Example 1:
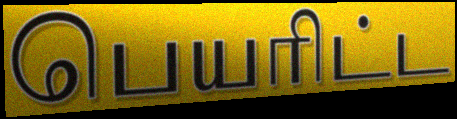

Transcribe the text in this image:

பெயரிட்ட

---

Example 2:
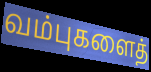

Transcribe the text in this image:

வம்புகளைத்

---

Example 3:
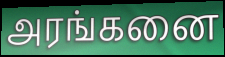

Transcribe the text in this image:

அரங்கனை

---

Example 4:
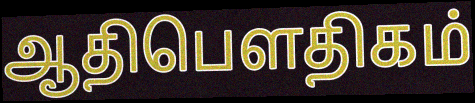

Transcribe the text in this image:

ஆதிபௌதிகம்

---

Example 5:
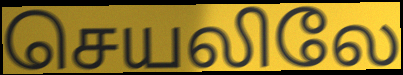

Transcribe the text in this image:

செயலிலே